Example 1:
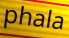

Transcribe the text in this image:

phala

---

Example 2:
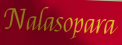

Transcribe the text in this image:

Nalasopara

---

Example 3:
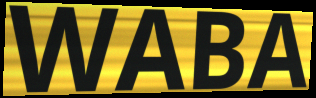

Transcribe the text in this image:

WABA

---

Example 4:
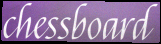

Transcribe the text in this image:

chessboard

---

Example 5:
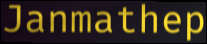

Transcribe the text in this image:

Janmathep